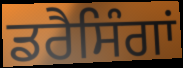
ਡਰੈਸਿੰਗਾਂ